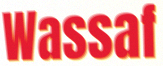
Wassaf